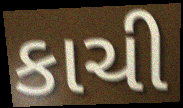
કાચી